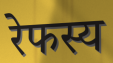
रेफस्य